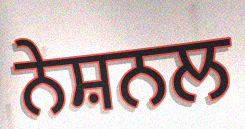
ਨੇਸ਼ਨਲ